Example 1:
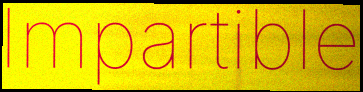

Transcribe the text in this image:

Impartible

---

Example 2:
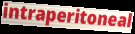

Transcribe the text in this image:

intraperitoneal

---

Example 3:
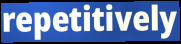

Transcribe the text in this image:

repetitively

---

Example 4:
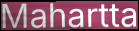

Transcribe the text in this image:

Mahartta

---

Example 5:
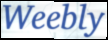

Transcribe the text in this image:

Weebly